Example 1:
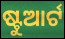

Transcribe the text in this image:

ଷ୍ଟୁଆର୍ଟ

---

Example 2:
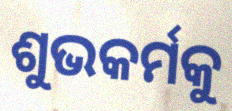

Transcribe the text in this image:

ଶୁଭକର୍ମକୁ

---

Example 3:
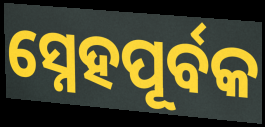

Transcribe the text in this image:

ସ୍ନେହପୂର୍ବକ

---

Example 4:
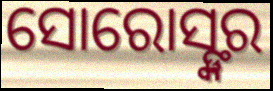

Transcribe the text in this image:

ସୋରୋସ୍ଙ୍କର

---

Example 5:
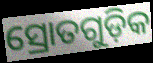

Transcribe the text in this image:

ସ୍ରୋତଗୁଡ଼ିକ